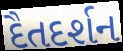
દૈતદર્શન